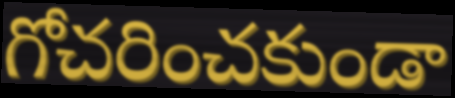
గోచరించకుండా